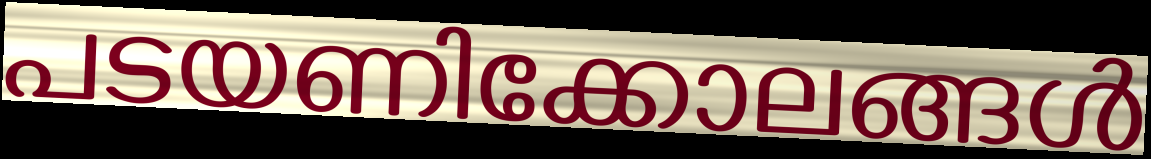
പടയണിക്കോലങ്ങൾ